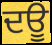
ਦਊ